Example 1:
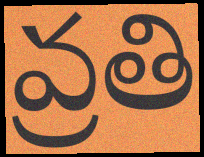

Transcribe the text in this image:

వ్రతి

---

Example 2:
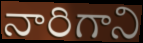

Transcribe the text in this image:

నారిగాని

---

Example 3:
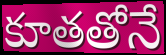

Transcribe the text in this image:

కూతతోనే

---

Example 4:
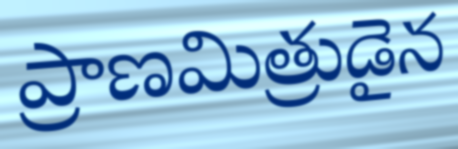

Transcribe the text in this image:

ప్రాణమిత్రుడైన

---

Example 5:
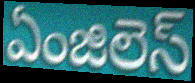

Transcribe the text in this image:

ఏంజిలెస్